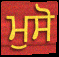
ਮੁਸੋ